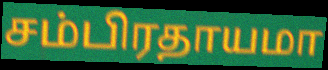
சம்பிரதாயமா